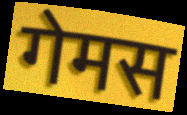
गेमस